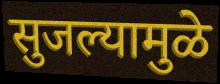
सुजल्यामुळे